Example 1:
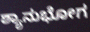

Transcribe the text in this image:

ಶ್ಯಾನುಭೋಗ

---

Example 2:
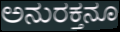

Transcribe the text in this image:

ಅನುರಕ್ತನೂ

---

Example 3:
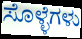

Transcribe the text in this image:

ಸೊಳ್ಳೆಗಳು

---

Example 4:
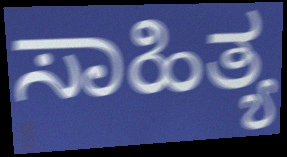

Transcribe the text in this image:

ಸಾಹಿತ್ಯ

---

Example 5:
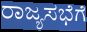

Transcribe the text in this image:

ರಾಜ್ಯಸಭೆಗೆ